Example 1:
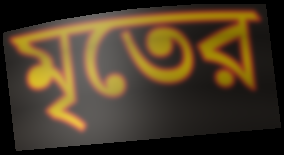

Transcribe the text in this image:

মৃতের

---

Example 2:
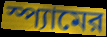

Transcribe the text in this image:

স্প্যামের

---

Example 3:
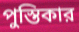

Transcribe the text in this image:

পুস্তিকার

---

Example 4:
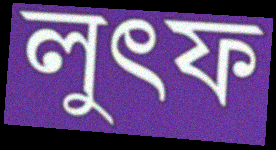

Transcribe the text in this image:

লুৎফ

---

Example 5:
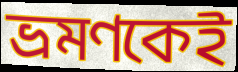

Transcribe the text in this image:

ভ্রমণকেই